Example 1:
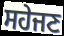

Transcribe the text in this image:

ਸਹੇਜਣ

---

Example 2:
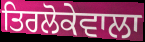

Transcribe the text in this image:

ਤਿਰਲੋਕੇਵਾਲਾ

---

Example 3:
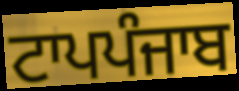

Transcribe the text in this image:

ਟਾਪਪੰਜਾਬ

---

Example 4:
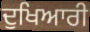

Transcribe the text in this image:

ਦੁਖਿਆਰੀ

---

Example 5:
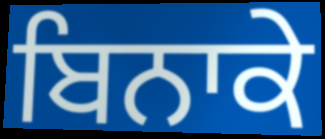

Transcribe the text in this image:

ਬਿਨਾਕੇ